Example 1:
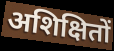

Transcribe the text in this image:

अशिक्षितों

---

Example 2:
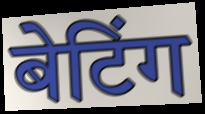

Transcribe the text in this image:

बेटिंग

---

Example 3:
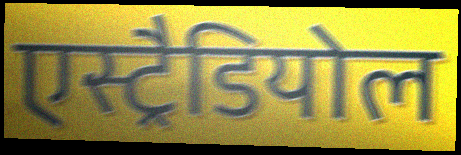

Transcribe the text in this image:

एस्ट्रैडियोल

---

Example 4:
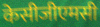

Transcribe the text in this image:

केसीजीएमसी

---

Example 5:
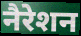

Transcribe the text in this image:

नैरेशन